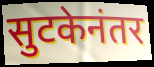
सुटकेनंतर